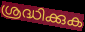
ശ്രദ്ധിക്കുക